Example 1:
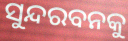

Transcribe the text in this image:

ସୁନ୍ଦରବନକୁ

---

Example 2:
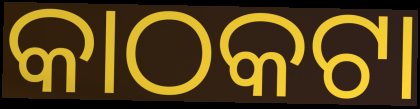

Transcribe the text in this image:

କାଠକଟା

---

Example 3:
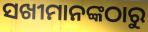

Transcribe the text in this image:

ସଖୀମାନଙ୍କଠାରୁ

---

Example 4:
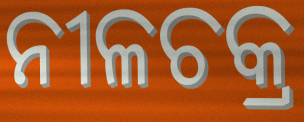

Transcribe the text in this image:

ନୀଳଚକ୍ର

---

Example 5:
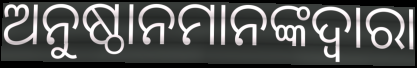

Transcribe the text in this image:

ଅନୁଷ୍ଠାନମାନଙ୍କଦ୍ଵାରା